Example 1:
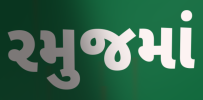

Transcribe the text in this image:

રમુજમાં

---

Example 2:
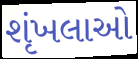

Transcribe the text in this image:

શૃંખલાઓ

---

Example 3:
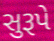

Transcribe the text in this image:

સુરૂપે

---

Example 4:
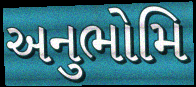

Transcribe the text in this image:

અનુભોમિ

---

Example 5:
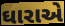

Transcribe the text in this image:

ઘારાએ